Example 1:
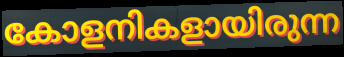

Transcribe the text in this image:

കോളനികളായിരുന്ന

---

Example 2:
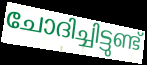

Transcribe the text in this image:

ചോദിച്ചിട്ടുണ്ട്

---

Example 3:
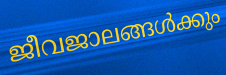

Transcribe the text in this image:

ജീവജാലങ്ങൾക്കും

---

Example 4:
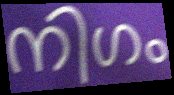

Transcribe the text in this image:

നിഗം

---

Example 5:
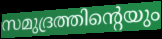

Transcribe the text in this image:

സമുദ്രത്തിന്റെയും